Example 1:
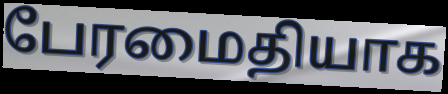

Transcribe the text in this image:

பேரமைதியாக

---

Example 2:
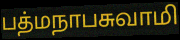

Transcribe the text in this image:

பத்மநாபசுவாமி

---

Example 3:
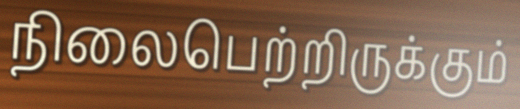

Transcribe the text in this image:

நிலைபெற்றிருக்கும்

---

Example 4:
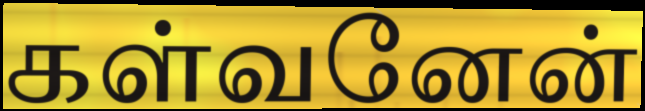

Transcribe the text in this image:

கள்வனேன்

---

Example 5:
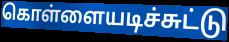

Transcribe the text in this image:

கொள்ளையடிச்சுட்டு